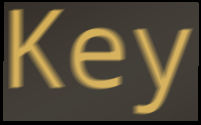
Key